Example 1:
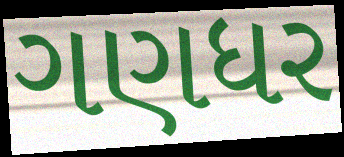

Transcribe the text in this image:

ગણધર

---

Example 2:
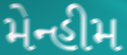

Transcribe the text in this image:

મેન્હીમ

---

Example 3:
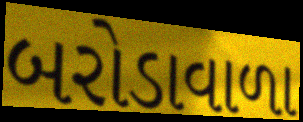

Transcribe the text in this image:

બરોડાવાળા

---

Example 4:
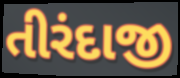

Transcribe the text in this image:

તીરંદાજી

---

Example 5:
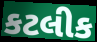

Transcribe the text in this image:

કટલીક